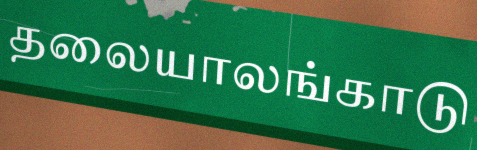
தலையாலங்காடு